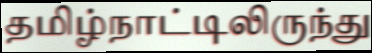
தமிழ்நாட்டிலிருந்து